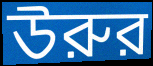
উরুর